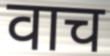
वाच